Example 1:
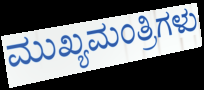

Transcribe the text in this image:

ಮುಖ್ಯಮಂತ್ರಿಗಳು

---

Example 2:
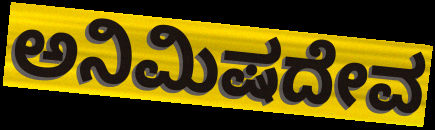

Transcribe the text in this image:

ಅನಿಮಿಷದೇವ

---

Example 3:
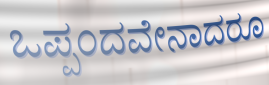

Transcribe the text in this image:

ಒಪ್ಪಂದವೇನಾದರೂ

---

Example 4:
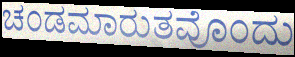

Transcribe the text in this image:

ಚಂಡಮಾರುತವೊಂದು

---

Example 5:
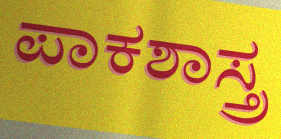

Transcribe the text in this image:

ಪಾಕಶಾಸ್ತ್ರ